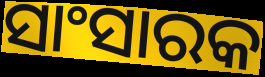
ସାଂସାରକ